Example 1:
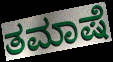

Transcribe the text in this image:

ತಮಾಷೆ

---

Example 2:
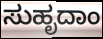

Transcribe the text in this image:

ಸುಹೃದಾಂ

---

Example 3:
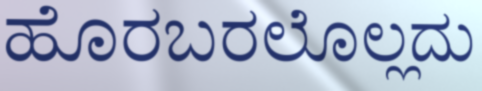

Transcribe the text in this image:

ಹೊರಬರಲೊಲ್ಲದು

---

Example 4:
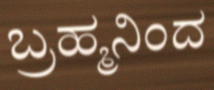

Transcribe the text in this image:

ಬ್ರಹ್ಮನಿಂದ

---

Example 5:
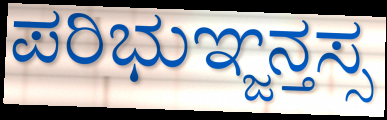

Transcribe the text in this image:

ಪರಿಭುಞ್ಜನ್ತಸ್ಸ